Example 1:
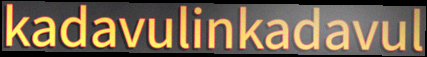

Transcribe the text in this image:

kadavulinkadavul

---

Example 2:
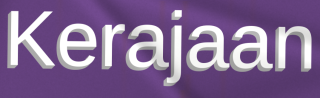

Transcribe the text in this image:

Kerajaan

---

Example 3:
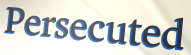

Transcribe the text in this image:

Persecuted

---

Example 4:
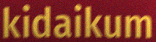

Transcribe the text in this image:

kidaikum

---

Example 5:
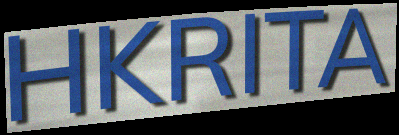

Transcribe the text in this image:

HKRITA